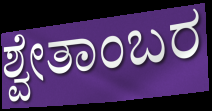
ಶ್ವೇತಾಂಬರ